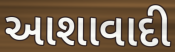
આશાવાદી